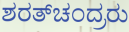
ಶರತ್‌ಚಂದ್ರರು